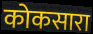
कोकसारा